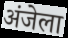
अंजेला